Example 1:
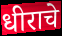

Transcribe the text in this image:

धीराचे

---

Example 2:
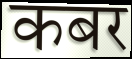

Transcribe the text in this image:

कबर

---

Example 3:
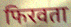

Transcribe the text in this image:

फिरवता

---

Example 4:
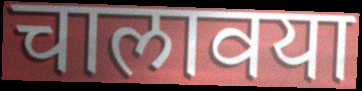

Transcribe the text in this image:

चालावया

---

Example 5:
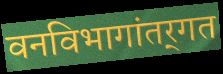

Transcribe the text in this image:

वनविभागांतर्गत